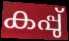
കപ്പു്